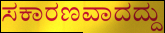
ಸಕಾರಣವಾದದ್ದು